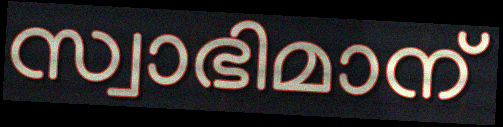
സ്വാഭിമാന്